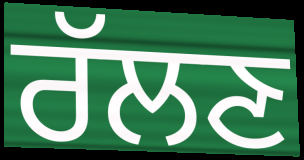
ਰੱਲਣ